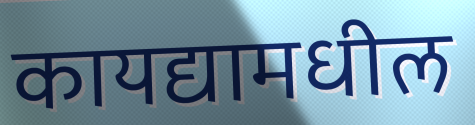
कायद्यामधील